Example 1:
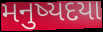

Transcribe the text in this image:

મનુષ્યદયા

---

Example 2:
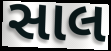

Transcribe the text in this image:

સાલ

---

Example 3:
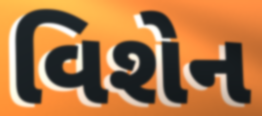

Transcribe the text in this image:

વિશેન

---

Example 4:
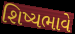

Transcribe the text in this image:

શિષ્યભાવે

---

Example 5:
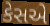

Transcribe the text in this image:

કેસએ